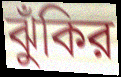
ঝুঁকির